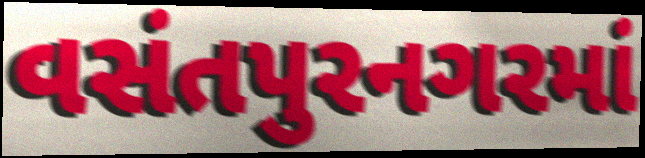
વસંતપુરનગરમાં